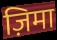
ज़िमा